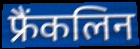
फ्रैंकलिन